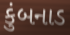
કુંબનાડ